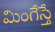
మింగేస్తే